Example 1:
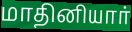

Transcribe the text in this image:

மாதினியார்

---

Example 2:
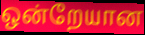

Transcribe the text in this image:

ஒன்றேயான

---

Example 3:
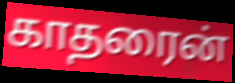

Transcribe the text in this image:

காதரைன்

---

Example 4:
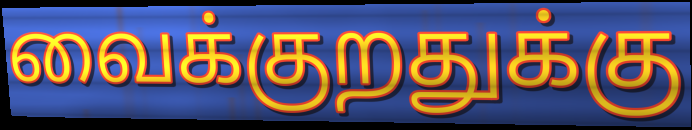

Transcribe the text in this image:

வைக்குறதுக்கு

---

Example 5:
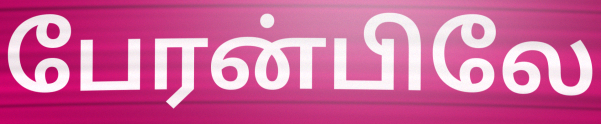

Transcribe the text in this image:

பேரன்பிலே